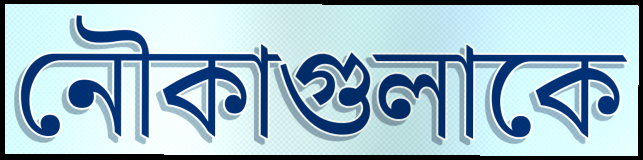
নৌকাগুলাকে